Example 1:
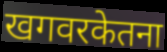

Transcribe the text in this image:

खगवरकेतना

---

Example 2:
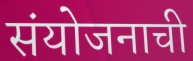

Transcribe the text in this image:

संयोजनाची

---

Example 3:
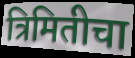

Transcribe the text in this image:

त्रिमितीचा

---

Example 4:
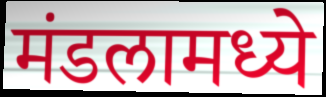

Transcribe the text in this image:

मंडलामध्ये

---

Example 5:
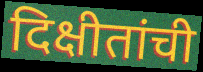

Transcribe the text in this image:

दिक्षीतांची